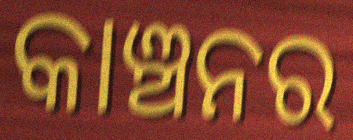
କାଞ୍ଚନର